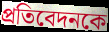
প্রতিবেদনকে